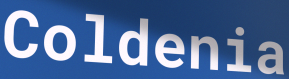
Coldenia